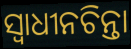
ସ୍ଵାଧୀନଚିନ୍ତା